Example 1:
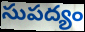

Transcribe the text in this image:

సుపద్యం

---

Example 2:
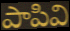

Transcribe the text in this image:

పాపివి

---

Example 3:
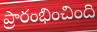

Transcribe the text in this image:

ప్రారంభించింది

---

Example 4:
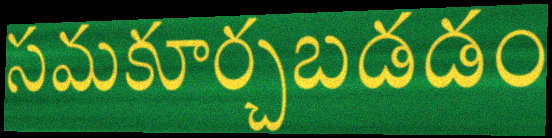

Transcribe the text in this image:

సమకూర్చబడడం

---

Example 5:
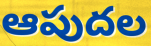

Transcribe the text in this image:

ఆపుదల